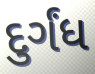
દુર્ગંધ